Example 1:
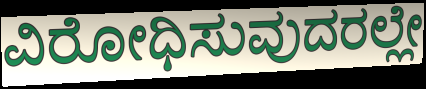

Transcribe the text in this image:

ವಿರೋಧಿಸುವುದರಲ್ಲೇ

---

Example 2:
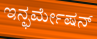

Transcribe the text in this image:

ಇನ್ಫರ್ಮೇಷನ್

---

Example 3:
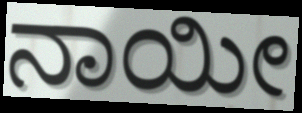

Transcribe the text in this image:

ನಾಯೀ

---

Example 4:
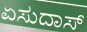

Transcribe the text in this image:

ಏಸುದಾಸ್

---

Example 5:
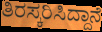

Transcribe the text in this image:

ತಿರಸ್ಕರಿಸಿದ್ದಾನೆ